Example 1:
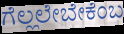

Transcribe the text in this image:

ಗೆಲ್ಲಲೇಬೇಕೆಂಬ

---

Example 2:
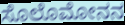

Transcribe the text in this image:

ಸೊಲೊಮೋನನ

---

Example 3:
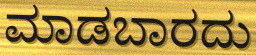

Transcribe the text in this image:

ಮಾಡಬಾರದು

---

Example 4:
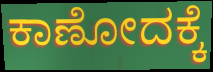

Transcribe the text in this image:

ಕಾಣೋದಕ್ಕೆ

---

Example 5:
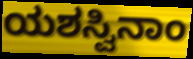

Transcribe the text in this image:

ಯಶಸ್ವಿನಾಂ